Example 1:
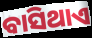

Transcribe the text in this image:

ବାସିଥାଏ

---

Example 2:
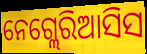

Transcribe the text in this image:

ନେଗ୍ଲେରିଆସିସ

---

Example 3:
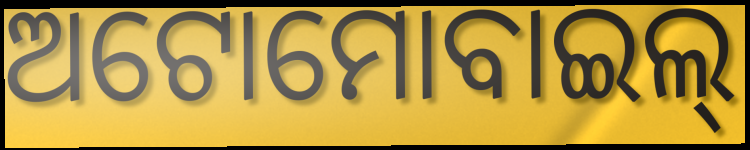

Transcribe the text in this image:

ଅଟୋମୋବାଇଲ୍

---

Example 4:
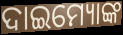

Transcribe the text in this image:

ଦାଇମ୍ଯୋଙ୍କ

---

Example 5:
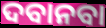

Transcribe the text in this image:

ଦବାନବା